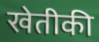
खेतीकी